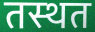
तस्थत